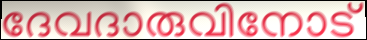
ദേവദാരുവിനോട്